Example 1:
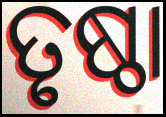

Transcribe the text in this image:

ତୃଷ୍ଠା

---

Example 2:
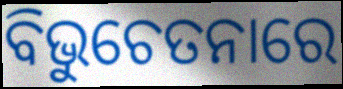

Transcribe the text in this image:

ବିଭୁଚେତନାରେ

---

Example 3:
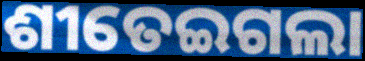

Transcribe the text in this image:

ଶୀତେଇଗଲା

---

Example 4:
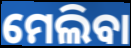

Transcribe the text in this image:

ମେଲିବା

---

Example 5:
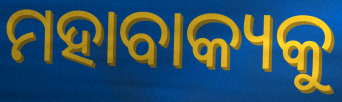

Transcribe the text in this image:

ମହାବାକ୍ୟକୁ